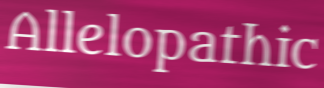
Allelopathic